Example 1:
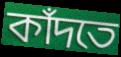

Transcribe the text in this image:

কাঁদতে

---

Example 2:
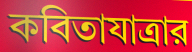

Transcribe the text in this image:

কবিতাযাত্রার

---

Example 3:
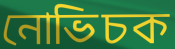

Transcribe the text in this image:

নোভিচক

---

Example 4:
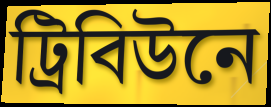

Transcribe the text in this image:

ট্রিবিউনে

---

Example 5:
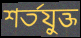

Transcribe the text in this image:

শর্তযুক্ত